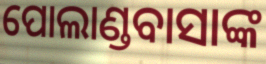
ପୋଲାଣ୍ଡବାସାଙ୍କ